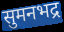
सुमनभद्र